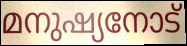
മനുഷ്യനോട്